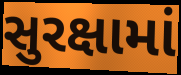
સુરક્ષામાં